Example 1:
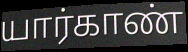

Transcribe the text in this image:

யார்காண்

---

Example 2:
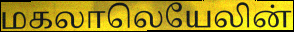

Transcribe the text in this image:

மகலாலெயேலின்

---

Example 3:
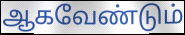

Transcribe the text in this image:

ஆகவேண்டும்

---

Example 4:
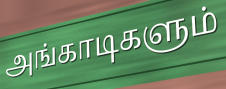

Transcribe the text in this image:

அங்காடிகளும்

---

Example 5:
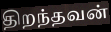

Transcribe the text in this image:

திறந்தவன்